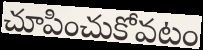
చూపించుకోవటం